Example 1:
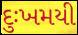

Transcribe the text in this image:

દુઃખમયી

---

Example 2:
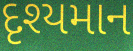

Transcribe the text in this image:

દૃશ્યમાન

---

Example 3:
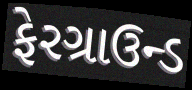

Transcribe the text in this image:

ફેરગ્રાઉન્ડ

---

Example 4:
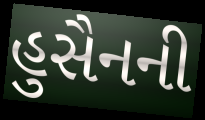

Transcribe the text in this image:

હુસૈનની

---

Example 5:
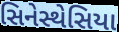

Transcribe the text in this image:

સિનેસ્થેસિયા